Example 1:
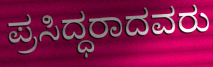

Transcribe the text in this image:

ಪ್ರಸಿದ್ಧರಾದವರು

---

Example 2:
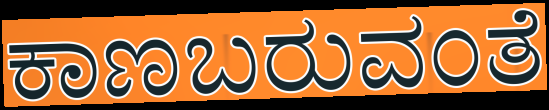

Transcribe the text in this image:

ಕಾಣಬರುವಂತೆ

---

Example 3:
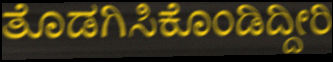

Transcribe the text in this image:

ತೊಡಗಿಸಿಕೊಂಡಿದ್ದೀರಿ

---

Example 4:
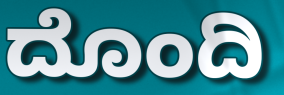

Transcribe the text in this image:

ದೊಂದಿ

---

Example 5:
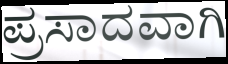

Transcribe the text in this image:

ಪ್ರಸಾದವಾಗಿ